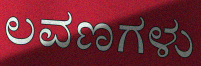
ಲವಣಗಳು